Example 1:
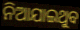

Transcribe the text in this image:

ନିଆଯାଇଥୁବ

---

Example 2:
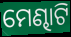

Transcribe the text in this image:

ମେଣ୍ଢାଟି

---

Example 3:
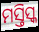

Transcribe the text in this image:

ମସ୍ତିସ୍କ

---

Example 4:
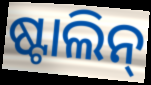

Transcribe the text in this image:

ଷ୍ଟାଲିନ୍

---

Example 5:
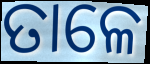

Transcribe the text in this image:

ତାଳେ